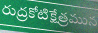
రుద్రకోటిక్షేత్రమున